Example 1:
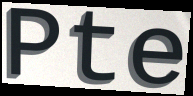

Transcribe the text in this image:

Pte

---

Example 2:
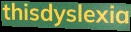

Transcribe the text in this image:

thisdyslexia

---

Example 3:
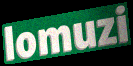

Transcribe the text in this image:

lomuzi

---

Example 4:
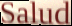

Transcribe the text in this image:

Salud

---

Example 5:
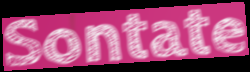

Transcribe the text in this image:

Sontate